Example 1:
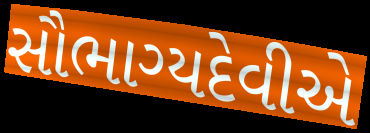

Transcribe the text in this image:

સૌભાગ્યદેવીએ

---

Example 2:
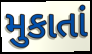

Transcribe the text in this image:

મુકાતાં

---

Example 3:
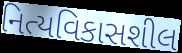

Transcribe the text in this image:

નિત્યવિકાસશીલ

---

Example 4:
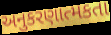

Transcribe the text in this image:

અનુકરણાત્મકતા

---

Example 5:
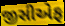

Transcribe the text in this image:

જીસીએફ